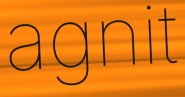
agnit